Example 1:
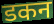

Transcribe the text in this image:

डकन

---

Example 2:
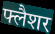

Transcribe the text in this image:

फ्लैशर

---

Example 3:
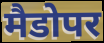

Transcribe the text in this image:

मैडोपर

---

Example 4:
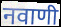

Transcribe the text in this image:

नवाणी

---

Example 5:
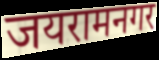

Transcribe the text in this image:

जयरामनगर